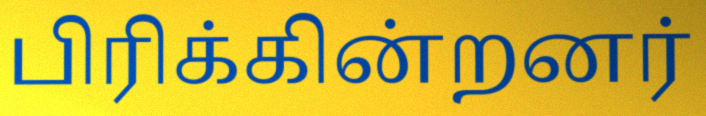
பிரிக்கின்றனர்